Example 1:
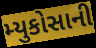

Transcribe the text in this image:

મ્યુકોસાની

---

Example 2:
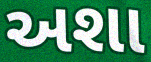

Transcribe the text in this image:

અશા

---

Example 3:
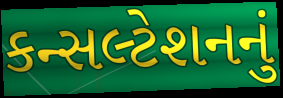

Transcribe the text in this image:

કન્સલ્ટેશનનું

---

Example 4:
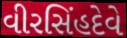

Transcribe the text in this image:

વીરસિંહદેવે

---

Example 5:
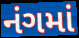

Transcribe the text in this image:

નંગમાં